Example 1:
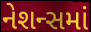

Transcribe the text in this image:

નેશન્સમાં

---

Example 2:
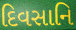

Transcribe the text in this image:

દિવસાનિ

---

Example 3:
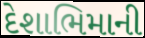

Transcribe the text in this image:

દેશાભિમાની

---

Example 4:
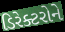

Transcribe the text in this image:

ડિરેક્ટરોને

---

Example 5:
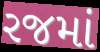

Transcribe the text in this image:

રજમાં